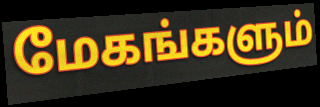
மேகங்களும்